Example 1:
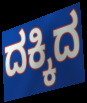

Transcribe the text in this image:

ದಕ್ಕಿದ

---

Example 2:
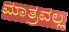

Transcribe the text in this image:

ಮಾತ್ರವಲ್ಲ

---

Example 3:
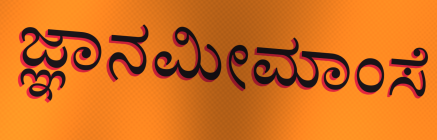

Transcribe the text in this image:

ಜ್ಞಾನಮೀಮಾಂಸೆ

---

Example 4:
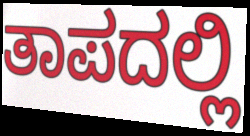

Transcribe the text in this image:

ತಾಪದಲ್ಲಿ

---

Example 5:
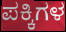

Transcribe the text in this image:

ಪಕ್ಕಿಗಳ